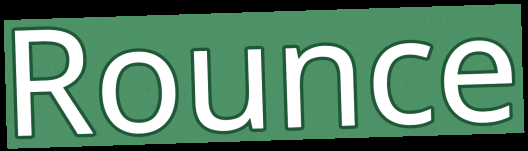
Rounce